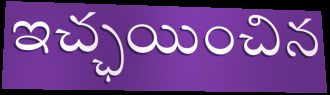
ఇచ్ఛయించిన